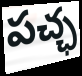
పచ్ఛ